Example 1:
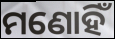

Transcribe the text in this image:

ମଣୋହିଁ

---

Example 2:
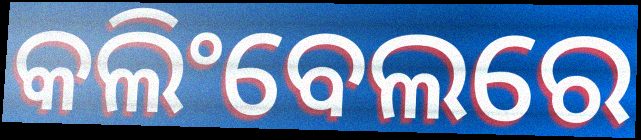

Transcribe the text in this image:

କଲିଂବେଲରେ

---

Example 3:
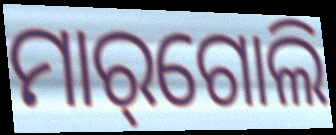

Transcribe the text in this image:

ମାର୍‌ଗୋଲି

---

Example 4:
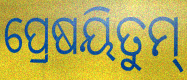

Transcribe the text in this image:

ପ୍ରେଷୟିତୁମ୍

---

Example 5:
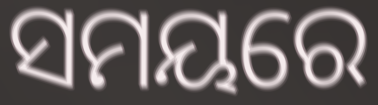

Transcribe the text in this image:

ସମୟରେ